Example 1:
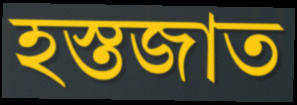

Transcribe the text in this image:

হস্তজাত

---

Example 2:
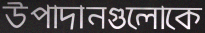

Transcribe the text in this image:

উপাদানগুলোকে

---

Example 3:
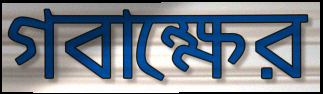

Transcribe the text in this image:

গবাক্ষের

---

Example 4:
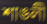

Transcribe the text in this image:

শাঙলী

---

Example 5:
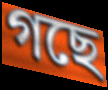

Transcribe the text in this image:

গছে